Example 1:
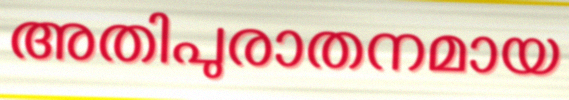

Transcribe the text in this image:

അതിപുരാതനമായ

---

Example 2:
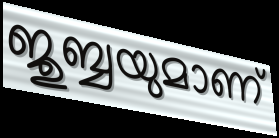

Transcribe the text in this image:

ജുബ്ബയുമാണ്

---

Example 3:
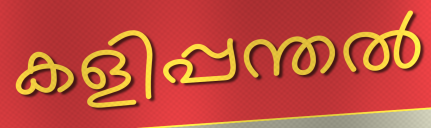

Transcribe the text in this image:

കളിപ്പന്തൽ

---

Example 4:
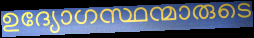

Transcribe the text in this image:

ഉദ്യോഗസ്ഥന്മാരുടെ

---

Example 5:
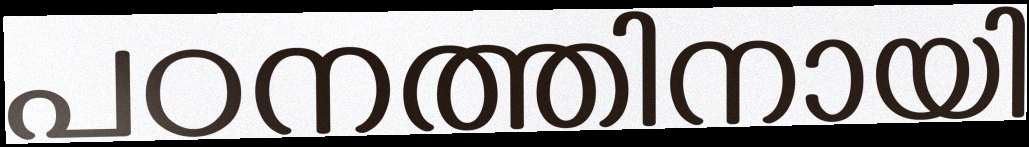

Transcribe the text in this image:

പഠനത്തിനായി